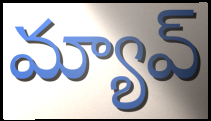
మ్యావ్